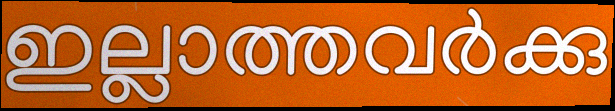
ഇല്ലാത്തവർക്കു